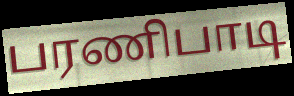
பரணிபாடி